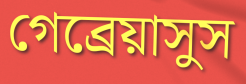
গেব্রেয়াসুস